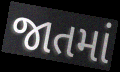
જાતમાં